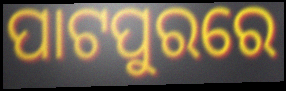
ପାଟପୁରରେ